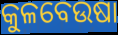
କୁଳବେଉଷା